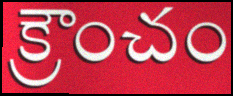
క్రౌంచం